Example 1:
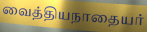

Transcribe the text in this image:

வைத்தியநாதையர்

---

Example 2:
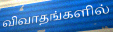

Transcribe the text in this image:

விவாதங்களில்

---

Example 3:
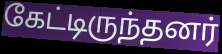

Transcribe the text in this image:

கேட்டிருந்தனர்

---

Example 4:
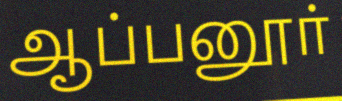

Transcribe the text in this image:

ஆப்பனூர்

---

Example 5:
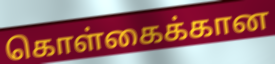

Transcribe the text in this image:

கொள்கைக்கான